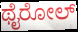
ಥೈರೋಲ್